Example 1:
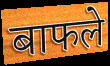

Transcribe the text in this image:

बाफले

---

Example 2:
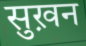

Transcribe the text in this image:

सुख़न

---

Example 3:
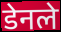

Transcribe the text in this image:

डेनले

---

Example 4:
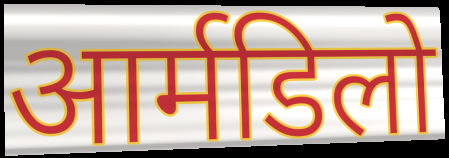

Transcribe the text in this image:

आर्मडिलो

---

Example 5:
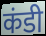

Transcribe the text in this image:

कंडी